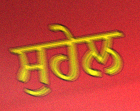
ਸੁਹੇਲ